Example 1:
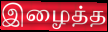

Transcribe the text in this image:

இழைத்த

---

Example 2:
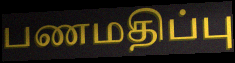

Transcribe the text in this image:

பணமதிப்பு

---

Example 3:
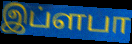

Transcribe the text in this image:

இப்ளபா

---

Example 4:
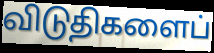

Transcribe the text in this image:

விடுதிகளைப்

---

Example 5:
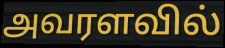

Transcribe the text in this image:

அவரளவில்